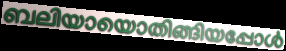
ബലിയായൊതിങ്ങിയപ്പോൾ